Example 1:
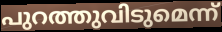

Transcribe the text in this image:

പുറത്തുവിടുമെന്ന്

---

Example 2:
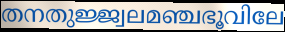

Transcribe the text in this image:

തനതുജ്ജ്വലമഞ്ചഭൂവിലേ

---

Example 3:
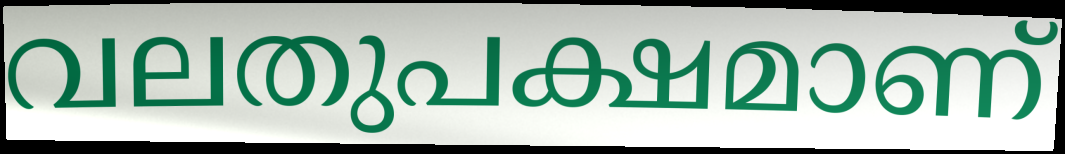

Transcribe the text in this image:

വലതുപക്ഷമാണ്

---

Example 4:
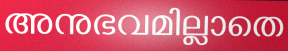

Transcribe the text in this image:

അനുഭവമില്ലാതെ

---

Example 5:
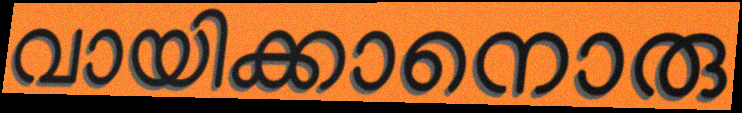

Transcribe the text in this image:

വായിക്കാനൊരു